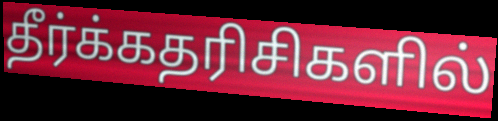
தீர்க்கதரிசிகளில்